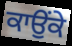
ਕਾਉਂਕੇ